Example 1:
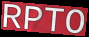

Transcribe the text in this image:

RPTO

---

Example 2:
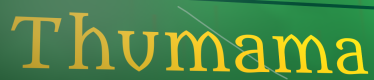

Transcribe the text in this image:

Thumama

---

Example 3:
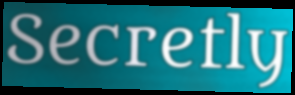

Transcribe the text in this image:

Secretly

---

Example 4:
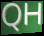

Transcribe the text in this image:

QH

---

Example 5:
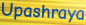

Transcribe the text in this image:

Upashraya